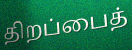
திறப்பைத்